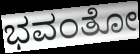
ಭವಂತೋ